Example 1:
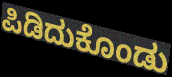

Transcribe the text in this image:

ಪಿಡಿದುಕೊಂಡು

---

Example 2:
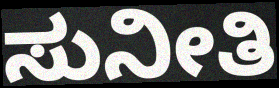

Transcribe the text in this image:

ಸುನೀತಿ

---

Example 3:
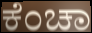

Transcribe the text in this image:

ಕೆಂಚಾ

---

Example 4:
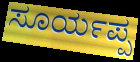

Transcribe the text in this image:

ಸೂರ್ಯಪ್ಪ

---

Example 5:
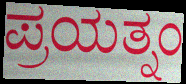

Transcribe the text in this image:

ಪ್ರಯತ್ನಂ